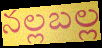
నల్లబల్ల